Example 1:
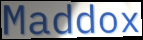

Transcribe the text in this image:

Maddox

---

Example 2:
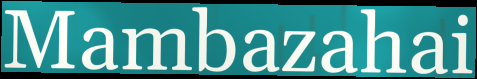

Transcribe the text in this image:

Mambazahai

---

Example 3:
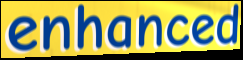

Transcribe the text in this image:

enhanced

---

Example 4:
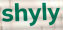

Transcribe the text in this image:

shyly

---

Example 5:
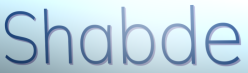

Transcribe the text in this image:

Shabde